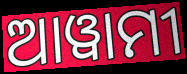
ଆୱାମୀ